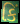
કિં